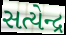
સત્યેન્દ્ર